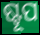
ଷ୍ଟୂପ